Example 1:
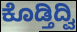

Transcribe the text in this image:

ಕೊಡ್ತಿದ್ವಿ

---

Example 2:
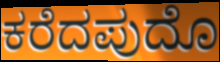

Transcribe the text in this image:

ಕರೆದಪುದೊ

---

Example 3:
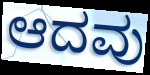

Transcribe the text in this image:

ಆದವು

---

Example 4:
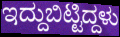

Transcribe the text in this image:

ಇದ್ದುಬಿಟ್ಟಿದ್ದಳು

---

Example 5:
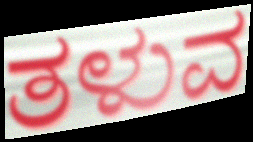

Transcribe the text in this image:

ತಳುವ